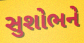
સુશોભને